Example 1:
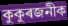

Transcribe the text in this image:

কুকুৰজনীক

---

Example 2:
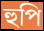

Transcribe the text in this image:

হুপি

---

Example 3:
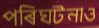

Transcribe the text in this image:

পৰিঘটনাও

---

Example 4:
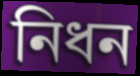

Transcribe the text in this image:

নিধন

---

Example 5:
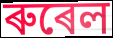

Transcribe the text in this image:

ৰুৰেল